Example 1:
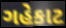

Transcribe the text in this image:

ગહેકાટ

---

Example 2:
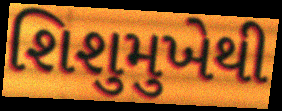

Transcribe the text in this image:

શિશુમુખેથી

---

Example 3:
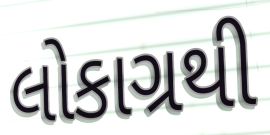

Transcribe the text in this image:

લોકાગ્રથી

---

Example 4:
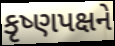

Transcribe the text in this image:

કૃષ્ણપક્ષને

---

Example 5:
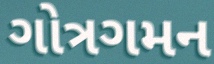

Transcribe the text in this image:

ગોત્રગમન